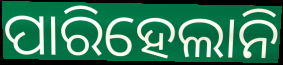
ପାରିହେଲାନି